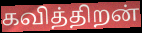
கவித்திறன்